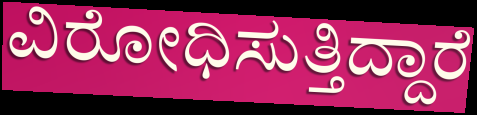
ವಿರೋಧಿಸುತ್ತಿದ್ದಾರೆ